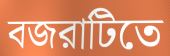
বজরাটিতে